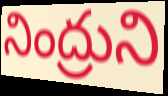
నింద్రుని